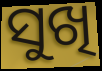
ସୁଖି